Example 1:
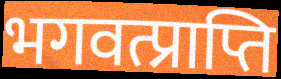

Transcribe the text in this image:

भगवत्प्राप्ति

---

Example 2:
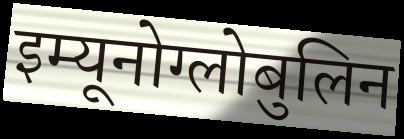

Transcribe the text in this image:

इम्यूनोग्लोबुलिन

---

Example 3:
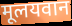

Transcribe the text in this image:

मूलयवान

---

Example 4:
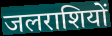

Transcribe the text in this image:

जलराशियों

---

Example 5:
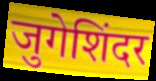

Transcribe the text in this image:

जुगेशिंदर